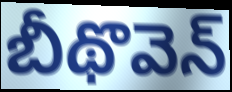
బీథొవెన్